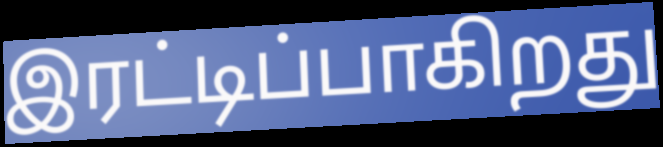
இரட்டிப்பாகிறது